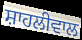
ਸ਼ਾਹਲੀਵਾਲ